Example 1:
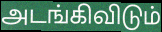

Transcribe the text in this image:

அடங்கிவிடும்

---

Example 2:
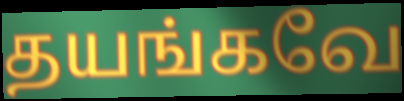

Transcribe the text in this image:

தயங்கவே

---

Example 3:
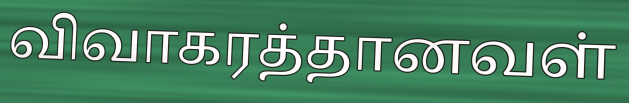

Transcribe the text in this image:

விவாகரத்தானவள்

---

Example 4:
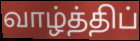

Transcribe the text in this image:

வாழ்த்திப்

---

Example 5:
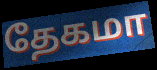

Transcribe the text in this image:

தேகமா